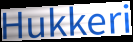
Hukkeri